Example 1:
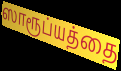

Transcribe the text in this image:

ஸாரூப்யத்தை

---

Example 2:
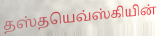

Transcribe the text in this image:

தஸ்தயெவ்ஸ்கியின்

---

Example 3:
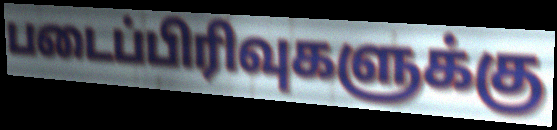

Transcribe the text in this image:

படைப்பிரிவுகளுக்கு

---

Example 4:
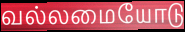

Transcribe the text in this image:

வல்லமையோடு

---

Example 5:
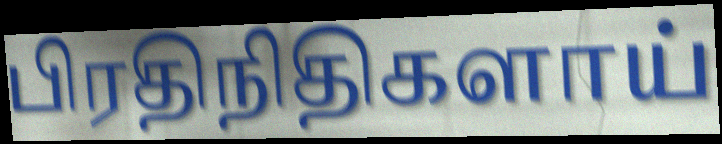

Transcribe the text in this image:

பிரதிநிதிகளாய்